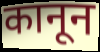
कानून